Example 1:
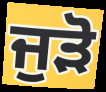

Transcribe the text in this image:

ਜੁੜੋ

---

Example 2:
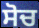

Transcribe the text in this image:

ਸੋਚ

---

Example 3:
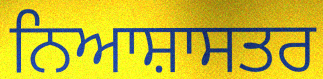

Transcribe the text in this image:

ਨਿਆਸ਼ਾਸਤਰ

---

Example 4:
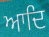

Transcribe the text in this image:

ਆਦਿ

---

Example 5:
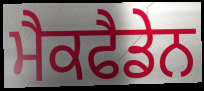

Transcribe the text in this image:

ਮੈਕਫੈਡੇਨ